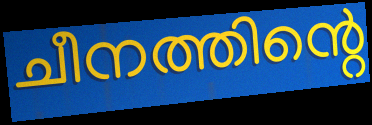
ചീനത്തിന്റെ